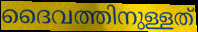
ദൈവത്തിനുള്ളത്